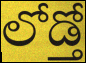
లోడ్తో